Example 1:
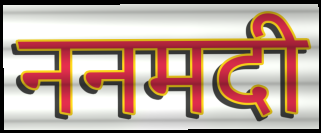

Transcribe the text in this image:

ननमदी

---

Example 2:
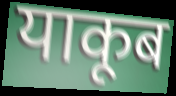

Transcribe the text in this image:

याकूब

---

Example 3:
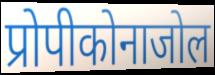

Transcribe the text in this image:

प्रोपीकोनाजोल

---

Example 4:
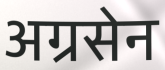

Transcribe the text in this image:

अग्रसेन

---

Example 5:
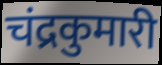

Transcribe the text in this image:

चंद्रकुमारी